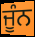
ਜੂੰਨ